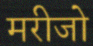
मरीजो